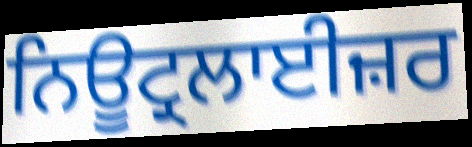
ਨਿਊਟ੍ਰਲਾਈਜ਼ਰ